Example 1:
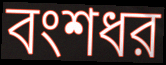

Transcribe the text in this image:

বংশধর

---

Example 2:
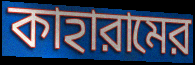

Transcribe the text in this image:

কাহারামের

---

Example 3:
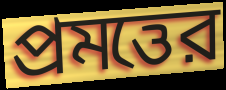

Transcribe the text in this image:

প্রমত্তের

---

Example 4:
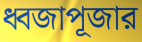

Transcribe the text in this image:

ধ্বজাপূজার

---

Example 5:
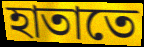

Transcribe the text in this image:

হাতাতে